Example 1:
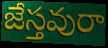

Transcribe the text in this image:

జేస్తవురా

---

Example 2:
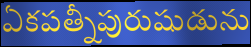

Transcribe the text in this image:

ఏకపత్నీపురుషుడును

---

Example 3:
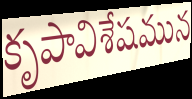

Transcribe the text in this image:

కృపావిశేషమున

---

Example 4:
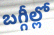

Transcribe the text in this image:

బగ్గీల్లో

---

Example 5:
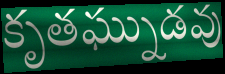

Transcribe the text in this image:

కృతఘ్నుడవు